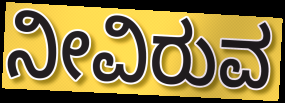
ನೀವಿರುವ